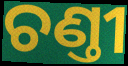
ଚଣ୍ତୀ